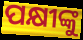
ପକ୍ଷୀଙ୍କୁ